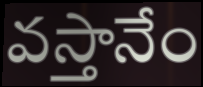
వస్తానేం